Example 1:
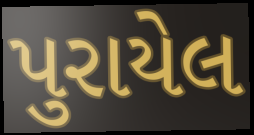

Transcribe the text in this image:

પુરાયેલ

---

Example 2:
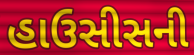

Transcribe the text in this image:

હાઉસીસની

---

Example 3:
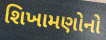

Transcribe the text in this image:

શિખામણોનો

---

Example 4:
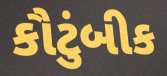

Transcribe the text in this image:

કૌટુંબીક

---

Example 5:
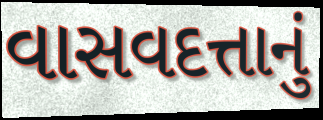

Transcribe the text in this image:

વાસવદત્તાનું